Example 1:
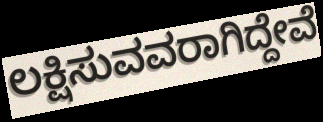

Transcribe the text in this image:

ಲಕ್ಷಿಸುವವರಾಗಿದ್ದೇವೆ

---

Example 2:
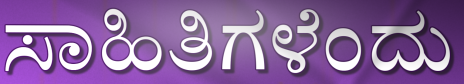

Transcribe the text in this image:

ಸಾಹಿತಿಗಳೆಂದು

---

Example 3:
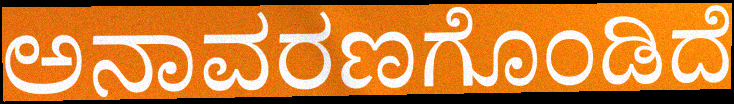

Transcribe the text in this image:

ಅನಾವರಣಗೊಂಡಿದೆ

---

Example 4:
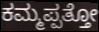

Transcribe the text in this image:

ಕಮ್ಮಪ್ಪತ್ತೋ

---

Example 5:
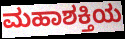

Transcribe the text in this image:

ಮಹಾಶಕ್ತಿಯ